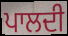
ਪਾਲਦੀ